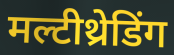
मल्टीथ्रेडिंग